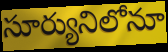
సూర్యునిలోనూ